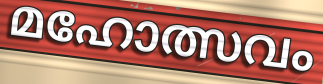
മഹോത്സവം